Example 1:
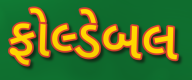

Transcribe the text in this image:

ફોલ્ડેબલ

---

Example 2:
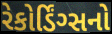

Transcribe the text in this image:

રેકોર્ડિંગ્સનો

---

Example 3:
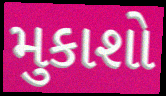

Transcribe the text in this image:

મુકાશો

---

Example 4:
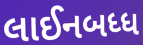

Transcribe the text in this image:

લાઈનબધ્ધ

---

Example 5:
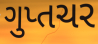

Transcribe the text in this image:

ગુપ્તચર